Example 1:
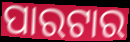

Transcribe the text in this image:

ପାରଟାର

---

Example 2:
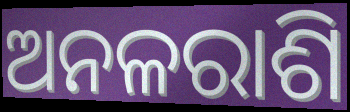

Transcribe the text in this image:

ଅନଳରାଶି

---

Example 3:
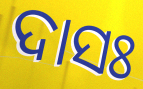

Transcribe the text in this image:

ଦାସଃ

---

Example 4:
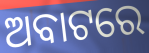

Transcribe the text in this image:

ଅବାଟରେ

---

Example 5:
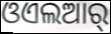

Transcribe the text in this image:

ଓଏଲଆର୍